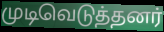
முடிவெடுத்தனர்